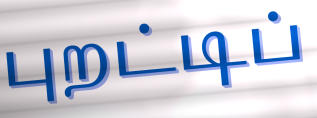
புறட்டிப்